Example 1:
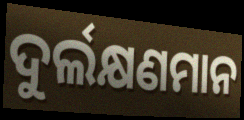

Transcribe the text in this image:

ଦୁର୍ଲକ୍ଷଣମାନ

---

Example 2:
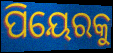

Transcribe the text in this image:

ପିୟେରକୁ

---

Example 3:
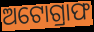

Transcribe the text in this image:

ଅଟୋଗ୍ରାଫ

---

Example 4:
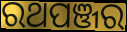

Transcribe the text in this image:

ରଥପଞ୍ଜର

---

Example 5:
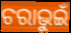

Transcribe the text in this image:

ଚରାଭୁଇଁ